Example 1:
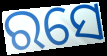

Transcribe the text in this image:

ରସେ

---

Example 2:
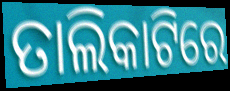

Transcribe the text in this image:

ତାଲିକାଟିରେ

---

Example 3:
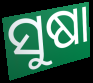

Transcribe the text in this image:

ସୁଷା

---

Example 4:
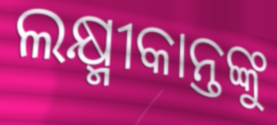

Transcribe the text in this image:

ଲକ୍ଷ୍ମୀକାନ୍ତଙ୍କୁ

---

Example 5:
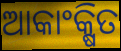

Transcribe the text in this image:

ଆକାଂକ୍ଷିତ